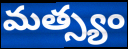
మత్స్యం